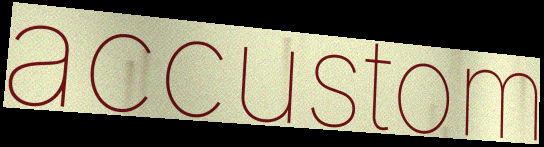
accustom